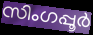
സിംഗപ്പൂർ